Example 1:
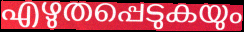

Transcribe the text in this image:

എഴുതപ്പെടുകയും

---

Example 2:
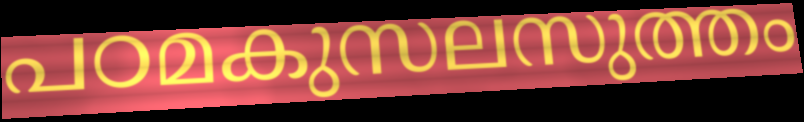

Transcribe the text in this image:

പഠമകുസലസുത്തം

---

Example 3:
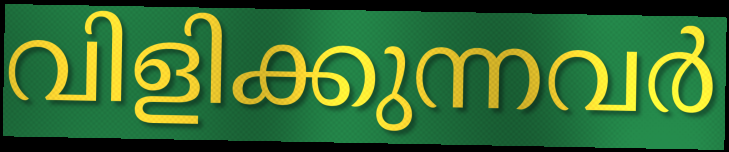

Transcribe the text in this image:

വിളിക്കുന്നവർ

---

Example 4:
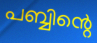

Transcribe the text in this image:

പബ്ബിന്റെ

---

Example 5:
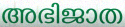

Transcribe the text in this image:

അഭിജാത